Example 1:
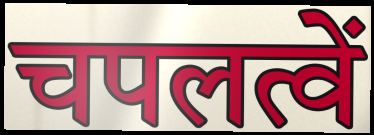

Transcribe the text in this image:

चपलत्वें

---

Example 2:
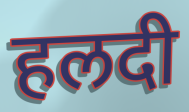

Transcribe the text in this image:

हलदी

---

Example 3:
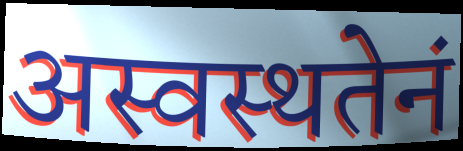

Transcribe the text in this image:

अस्वस्थतेनं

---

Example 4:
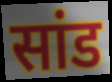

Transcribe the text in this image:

सांड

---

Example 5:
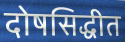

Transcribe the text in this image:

दोषसिद्धीत